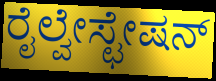
ರೈಲ್ವೇಸ್ಟೇಷನ್